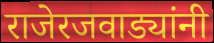
राजेरजवाड्यांनी